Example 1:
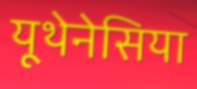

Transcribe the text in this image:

यूथेनेसिया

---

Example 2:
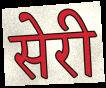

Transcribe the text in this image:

सेरी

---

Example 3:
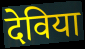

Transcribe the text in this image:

देविया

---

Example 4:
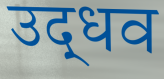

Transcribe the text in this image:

उद्धव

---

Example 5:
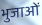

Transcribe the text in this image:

भुजाओं